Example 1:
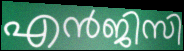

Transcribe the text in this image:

എൻജിസി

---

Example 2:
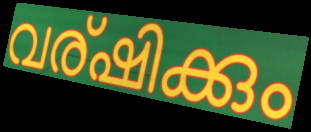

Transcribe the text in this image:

വര്ഷിക്കും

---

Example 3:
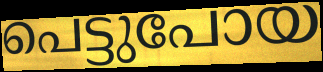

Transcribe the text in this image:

പെട്ടുപോയ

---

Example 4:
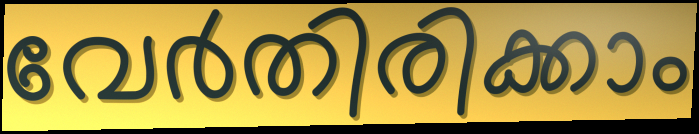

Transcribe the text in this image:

വേർതിരിക്കാം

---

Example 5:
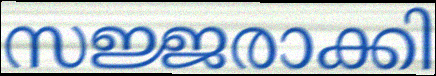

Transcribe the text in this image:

സജ്ജരാക്കി